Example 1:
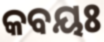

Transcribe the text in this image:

କବୟଃ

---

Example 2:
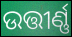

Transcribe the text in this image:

ଉତ୍ତୀର୍ଣ୍ଣ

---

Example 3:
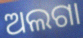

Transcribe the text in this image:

ଅଲଗା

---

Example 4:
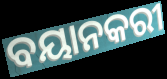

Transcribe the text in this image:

ବୟାନକରୀ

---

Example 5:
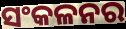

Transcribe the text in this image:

ସଂକଳନର